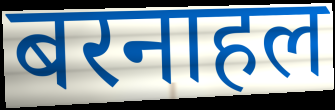
बरनाहल